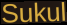
Sukul